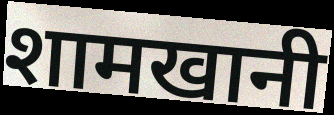
शामखानी